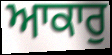
ਆਕਾਰੁ